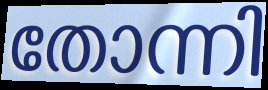
തോന്നി